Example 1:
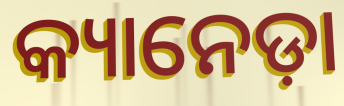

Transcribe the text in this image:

କ୍ୟାନେଡ଼ା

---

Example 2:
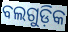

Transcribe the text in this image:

ବଲଗୁଡ଼ିକ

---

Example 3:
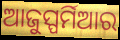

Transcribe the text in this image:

ଆଜୁସ୍ପର୍ମିଆର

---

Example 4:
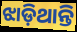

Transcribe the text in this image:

ଝାଡ଼ିଥାନ୍ତି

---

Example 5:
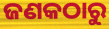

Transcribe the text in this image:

ଜଣକଠାରୁ